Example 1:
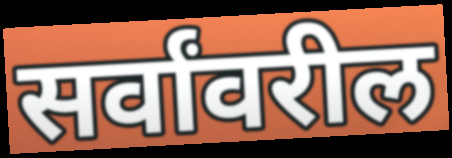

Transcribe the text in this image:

सर्वांवरील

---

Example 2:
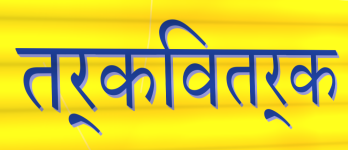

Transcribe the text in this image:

तर्कवितर्क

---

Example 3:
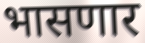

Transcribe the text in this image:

भासणार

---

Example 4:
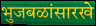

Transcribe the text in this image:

भुजबळांसारखे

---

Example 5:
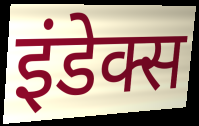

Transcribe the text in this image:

इंडेक्स